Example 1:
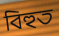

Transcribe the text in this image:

বিহুত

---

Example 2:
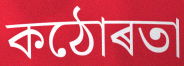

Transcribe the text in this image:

কঠোৰতা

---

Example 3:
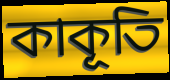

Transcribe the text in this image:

কাকূতি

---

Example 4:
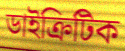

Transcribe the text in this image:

ডাইক্ৰিটিক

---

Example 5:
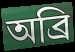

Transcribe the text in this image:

অব্ৰি